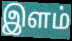
இளம்